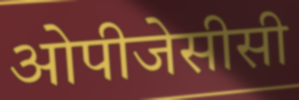
ओपीजेसीसी